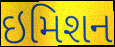
ઇમિશન